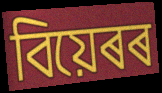
বিয়েৰৰ